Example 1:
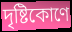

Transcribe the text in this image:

দৃষ্টিকোণে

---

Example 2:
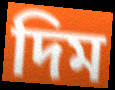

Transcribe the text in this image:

দিম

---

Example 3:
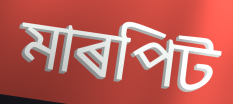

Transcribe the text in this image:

মাৰপিট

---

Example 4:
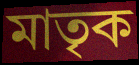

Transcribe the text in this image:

মাতৃক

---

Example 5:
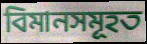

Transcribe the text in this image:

বিমানসমূহত